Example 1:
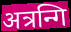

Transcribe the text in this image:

अत्रन्गि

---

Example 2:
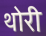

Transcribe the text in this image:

थोरी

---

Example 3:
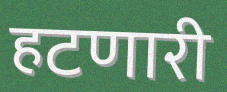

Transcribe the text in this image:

हटणारी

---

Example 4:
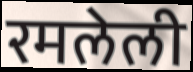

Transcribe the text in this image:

रमलेली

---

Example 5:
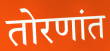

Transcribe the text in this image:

तोरणांत